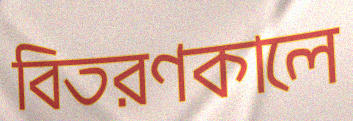
বিতরণকালে